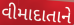
વીમાદાતાને